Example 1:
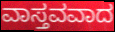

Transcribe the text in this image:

ವಾಸ್ತವವಾದ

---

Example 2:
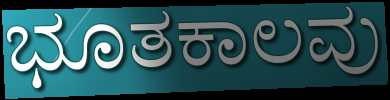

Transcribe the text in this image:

ಭೂತಕಾಲವು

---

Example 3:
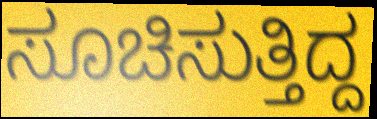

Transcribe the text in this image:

ಸೂಚಿಸುತ್ತಿದ್ದ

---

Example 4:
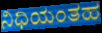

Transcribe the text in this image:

ನಿಧಿಯಂತಹ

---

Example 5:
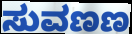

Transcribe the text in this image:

ಸುವಣಣ